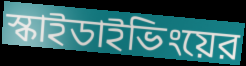
স্কাইডাইভিংয়ের